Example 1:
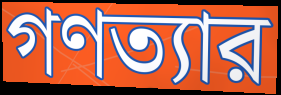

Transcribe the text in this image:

গণত্যার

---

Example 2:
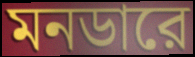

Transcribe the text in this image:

মনডারে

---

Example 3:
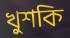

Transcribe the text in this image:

খুশকি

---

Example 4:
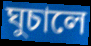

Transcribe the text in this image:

ঘুচালে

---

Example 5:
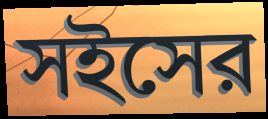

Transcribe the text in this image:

সইসের